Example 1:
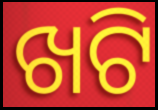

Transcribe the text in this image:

ଖଟି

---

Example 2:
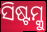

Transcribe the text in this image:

ସିଷ୍ଟମ୍କୁ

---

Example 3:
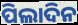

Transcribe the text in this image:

ପିଲାଦିନ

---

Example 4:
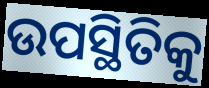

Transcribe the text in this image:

ଉପସ୍ଥିତିକୁ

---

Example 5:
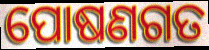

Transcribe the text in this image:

ପୋଷଣଗତ